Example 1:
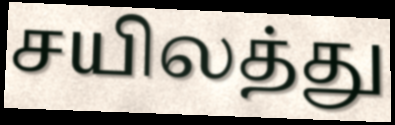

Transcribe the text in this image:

சயிலத்து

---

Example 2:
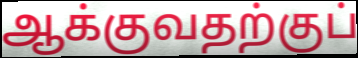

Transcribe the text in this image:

ஆக்குவதற்குப்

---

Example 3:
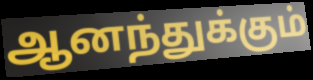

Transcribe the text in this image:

ஆனந்துக்கும்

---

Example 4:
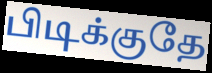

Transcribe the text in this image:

பிடிக்குதே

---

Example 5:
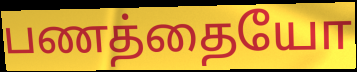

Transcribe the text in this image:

பணத்தையோ